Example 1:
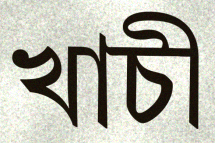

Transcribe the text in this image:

খাচী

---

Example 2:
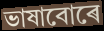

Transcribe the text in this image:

ভাষাবোৰে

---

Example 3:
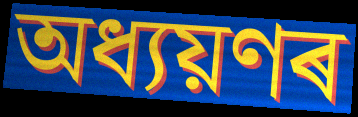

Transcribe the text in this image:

অধ্যয়ণৰ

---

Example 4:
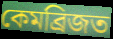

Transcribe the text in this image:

কেমব্ৰিজত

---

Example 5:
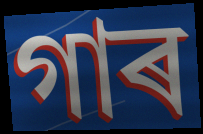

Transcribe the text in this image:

গাৰ